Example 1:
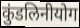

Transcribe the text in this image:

कुंडलिनीयोग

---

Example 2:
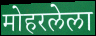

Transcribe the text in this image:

मोहरलेला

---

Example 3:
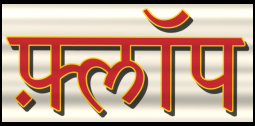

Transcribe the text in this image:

फ़्लॉप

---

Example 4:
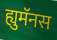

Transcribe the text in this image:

ह्युमॅनस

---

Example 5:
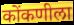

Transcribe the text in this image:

कोंकणीला